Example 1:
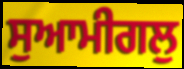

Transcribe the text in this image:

ਸੁਆਮੀਗਲੁ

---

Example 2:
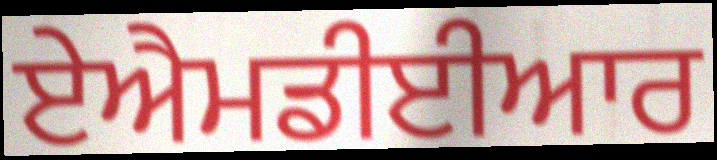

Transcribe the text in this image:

ਏਐਮਡੀਈਆਰ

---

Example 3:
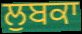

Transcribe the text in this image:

ਲੁਬਕਾ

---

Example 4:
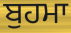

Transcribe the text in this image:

ਬੁਹਮਾ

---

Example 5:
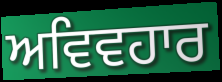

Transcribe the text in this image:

ਅਵਿਵਹਾਰ